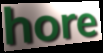
hore